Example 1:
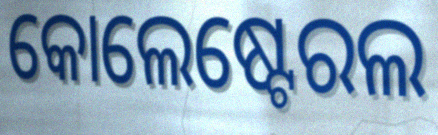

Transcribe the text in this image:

କୋଲେଷ୍ଟେରଲ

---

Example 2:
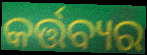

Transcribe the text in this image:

କର୍ତ୍ତବ୍ୟର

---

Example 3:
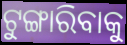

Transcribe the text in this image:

ଟୁଙ୍ଗାରିବାକୁ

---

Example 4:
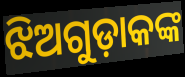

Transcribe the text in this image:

ଝିଅଗୁଡ଼ାକଙ୍କ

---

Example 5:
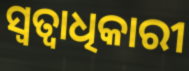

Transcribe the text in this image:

ସ୍ଵତ୍ୱାଧିକାରୀ